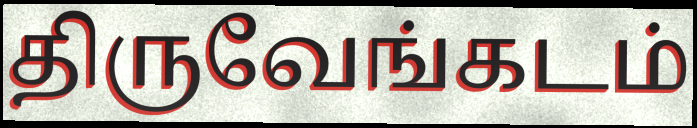
திருவேங்கடம்